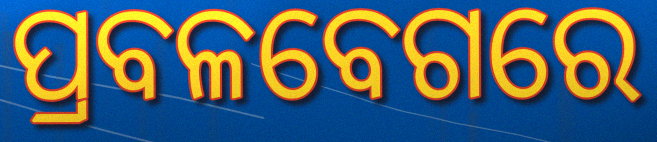
ପ୍ରବଳବେଗରେ